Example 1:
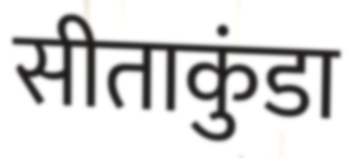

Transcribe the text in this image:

सीताकुंडा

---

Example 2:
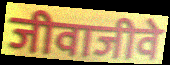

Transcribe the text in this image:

जीवाजीवे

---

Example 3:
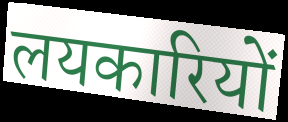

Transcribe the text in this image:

लयकारियों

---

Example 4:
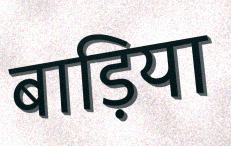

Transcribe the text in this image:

बाड़िया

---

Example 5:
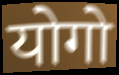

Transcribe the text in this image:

योगो